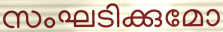
സംഘടിക്കുമോ